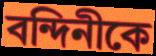
বন্দিনীকে